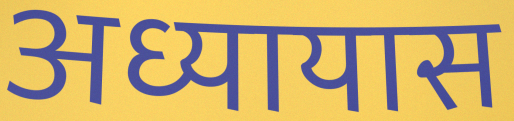
अध्यायास